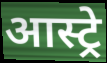
आस्ट्रे